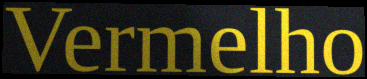
Vermelho